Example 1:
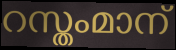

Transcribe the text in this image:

റസ്തംമാന്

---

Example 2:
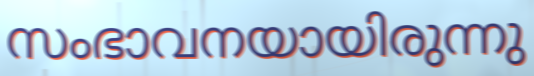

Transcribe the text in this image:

സംഭാവനയായിരുന്നു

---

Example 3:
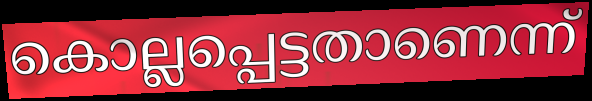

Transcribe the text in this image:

കൊല്ലപ്പെട്ടതാണെന്ന്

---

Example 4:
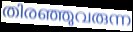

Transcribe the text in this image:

തിരഞ്ഞുവരുന്ന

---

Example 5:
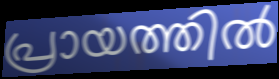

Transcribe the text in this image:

പ്രായത്തിൽ